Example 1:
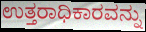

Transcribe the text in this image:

ಉತ್ತರಾಧಿಕಾರವನ್ನು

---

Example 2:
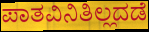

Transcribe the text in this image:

ಪಾತವಿನಿತಿಲ್ಲದಡೆ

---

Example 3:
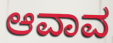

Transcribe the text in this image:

ಆವಾವ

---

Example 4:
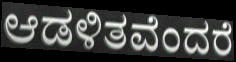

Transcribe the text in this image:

ಆಡಳಿತವೆಂದರೆ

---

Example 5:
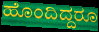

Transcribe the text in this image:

ಹೊಂದಿದ್ದರೂ